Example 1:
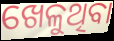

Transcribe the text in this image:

ଖେଳୁଥିବା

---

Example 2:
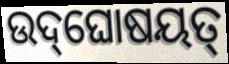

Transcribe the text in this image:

ଉଦ୍‌ଘୋଷୟତ୍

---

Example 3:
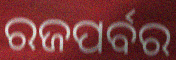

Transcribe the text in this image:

ରଜପର୍ବର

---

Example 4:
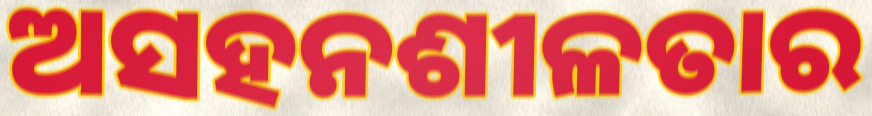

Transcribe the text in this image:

ଅସହନଶୀଳତାର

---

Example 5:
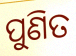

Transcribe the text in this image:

ପୁଣିତ